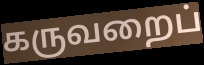
கருவறைப்